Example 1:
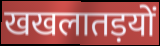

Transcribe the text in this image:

खखलातड़यों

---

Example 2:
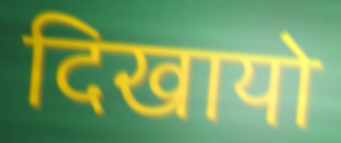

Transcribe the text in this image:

दिखायो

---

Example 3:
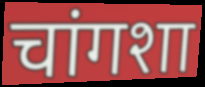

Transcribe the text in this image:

चांगशा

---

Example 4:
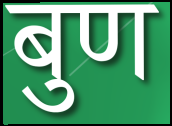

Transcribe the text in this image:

बुण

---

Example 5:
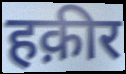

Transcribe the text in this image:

हक़ीर